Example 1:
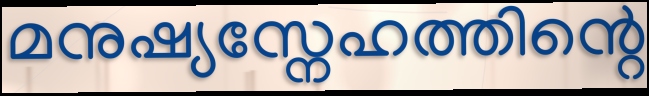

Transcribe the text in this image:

മനുഷ്യസ്നേഹത്തിന്റെ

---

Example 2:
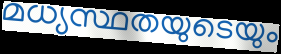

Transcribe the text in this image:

മധ്യസ്ഥതയുടെയും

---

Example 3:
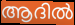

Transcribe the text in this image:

ആദിൽ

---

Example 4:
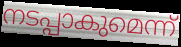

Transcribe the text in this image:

നടപ്പാകുമെന്ന്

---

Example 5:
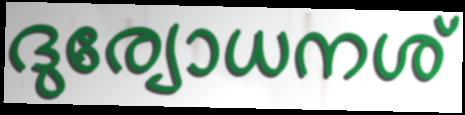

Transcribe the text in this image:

ദുര്യോധനശ്